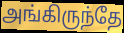
அங்கிருந்தே